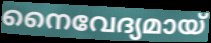
നൈവേദ്യമായ്